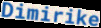
Dimirike